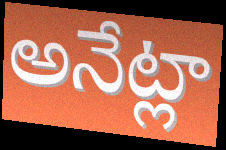
అనేట్లా